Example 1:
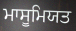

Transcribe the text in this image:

ਮਾਸੂਮਿਯਤ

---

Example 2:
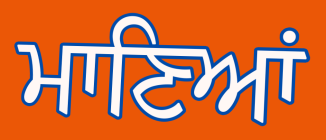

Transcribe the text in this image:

ਮਾਣਿਆਂ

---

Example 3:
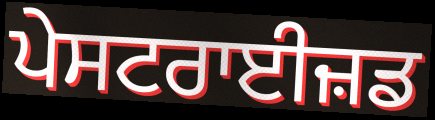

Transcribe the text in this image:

ਪੇਸਟਰਾਈਜ਼ਡ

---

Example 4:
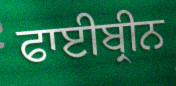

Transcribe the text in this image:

ਫਾਈਬ੍ਰੀਨ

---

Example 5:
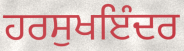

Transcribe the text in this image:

ਹਰਸੁਖਇੰਦਰ